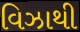
વિઝાથી